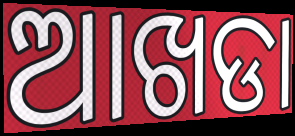
ଆଖଡା